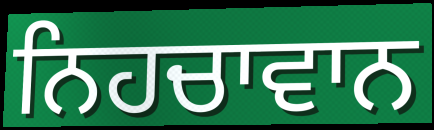
ਨਿਹਚਾਵਾਨ